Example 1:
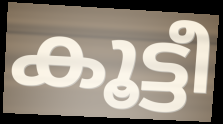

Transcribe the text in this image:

കൂട്ടീ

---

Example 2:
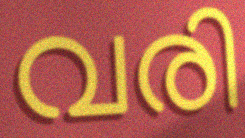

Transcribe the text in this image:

വരി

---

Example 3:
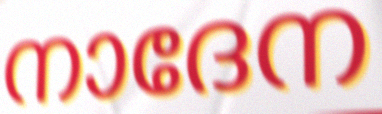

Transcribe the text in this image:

നാദേന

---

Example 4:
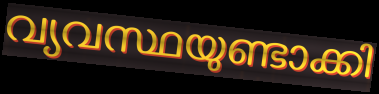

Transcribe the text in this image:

വ്യവസ്ഥയുണ്ടാക്കി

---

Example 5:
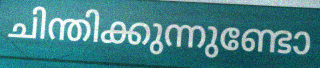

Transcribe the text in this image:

ചിന്തിക്കുന്നുണ്ടോ